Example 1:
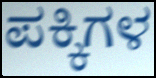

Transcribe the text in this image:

ಪಕ್ಕಿಗಳ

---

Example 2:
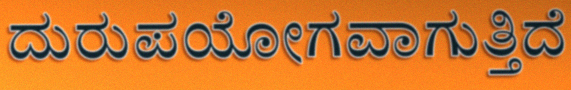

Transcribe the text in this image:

ದುರುಪಯೋಗವಾಗುತ್ತಿದೆ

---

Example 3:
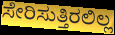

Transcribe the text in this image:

ಸೇರಿಸುತ್ತಿರಲಿಲ್ಲ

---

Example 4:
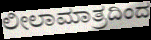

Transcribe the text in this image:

ಲೀಲಾಮಾತ್ರದಿಂದ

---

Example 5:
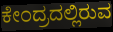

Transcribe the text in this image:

ಕೇಂದ್ರದಲ್ಲಿರುವ